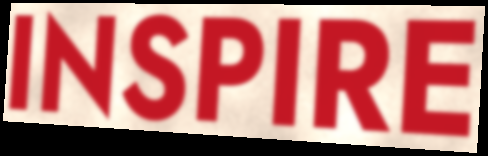
INSPIRE